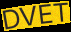
DVET